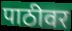
पाठीवर